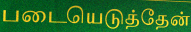
படையெடுத்தேன்